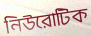
নিউরোটিক